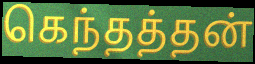
கெந்தத்தன்